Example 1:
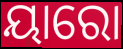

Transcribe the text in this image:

ୟାରୋ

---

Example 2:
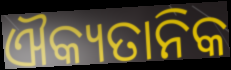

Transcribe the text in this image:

ଐକ୍ୟତାନିକ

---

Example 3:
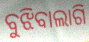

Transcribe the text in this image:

ବୁଝିବାଲାଗି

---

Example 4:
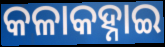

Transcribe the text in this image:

କଳାକହ୍ନାଇ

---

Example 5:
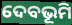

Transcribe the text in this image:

ଦେବଭୂମି